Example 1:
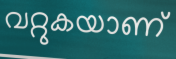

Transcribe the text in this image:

വറ്റുകയാണ്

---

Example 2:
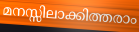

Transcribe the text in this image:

മനസ്സിലാക്കിത്തരാം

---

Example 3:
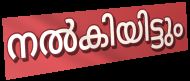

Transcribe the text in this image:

നൽകിയിട്ടും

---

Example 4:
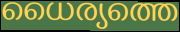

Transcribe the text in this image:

ധൈര്യത്തെ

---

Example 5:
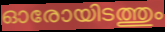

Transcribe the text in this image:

ഓരോയിടത്തും